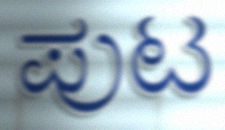
ಪುಟ